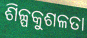
ଶିଳ୍ପକୁଶଳତା